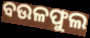
ବଉଳଫୁଲ